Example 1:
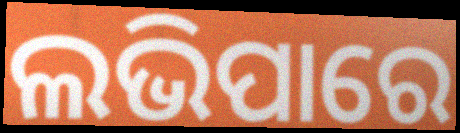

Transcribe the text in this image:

ଲଭିପାରେ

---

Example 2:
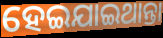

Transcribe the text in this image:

ହେଇଯାଇଥାନ୍ତା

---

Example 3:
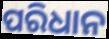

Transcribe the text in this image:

ପରିଧାନ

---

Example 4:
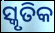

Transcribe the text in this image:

ସ୍କୃତିକ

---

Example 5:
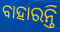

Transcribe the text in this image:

ବାହାରନ୍ତି